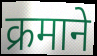
क्रमाने